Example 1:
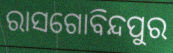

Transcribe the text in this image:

ରାସଗୋବିନ୍ଦପୁର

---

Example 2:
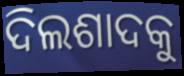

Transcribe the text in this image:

ଦିଲଶାଦକୁ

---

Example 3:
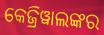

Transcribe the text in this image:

କେଜ୍ରିୱାଲଙ୍କର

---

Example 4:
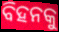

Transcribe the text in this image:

ବିହନକୁ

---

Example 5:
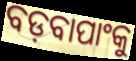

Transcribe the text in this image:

ବଡ଼ବାପାଂକୁ